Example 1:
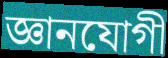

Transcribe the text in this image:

জ্ঞানযোগী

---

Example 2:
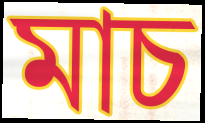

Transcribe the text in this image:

মাচ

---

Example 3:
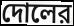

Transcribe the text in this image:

দোলের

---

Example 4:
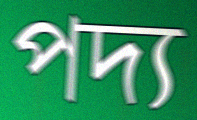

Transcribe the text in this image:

পদ্য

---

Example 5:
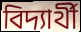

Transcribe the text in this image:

বিদ্যার্থী